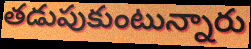
తడుపుకుంటున్నారు